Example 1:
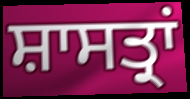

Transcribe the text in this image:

ਸ਼ਾਸਤ੍ਰਾਂ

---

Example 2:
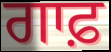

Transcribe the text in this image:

ਗਾਫ਼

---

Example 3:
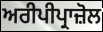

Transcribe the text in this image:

ਅਰੀਪੀਪ੍ਰਾਜ਼ੋਲ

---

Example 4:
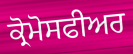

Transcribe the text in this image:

ਕ੍ਰੋਮੋਸਫੀਅਰ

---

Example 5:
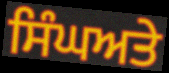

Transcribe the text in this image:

ਸਿੰਘਅਤੇ